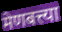
मेणबत्त्या